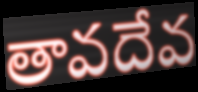
తావదేవ